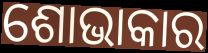
ଶୋଭାକାର